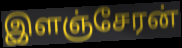
இளஞ்சேரன்